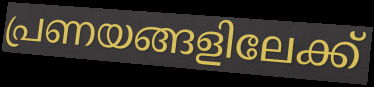
പ്രണയങ്ങളിലേക്ക്